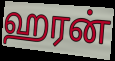
ஹரன்